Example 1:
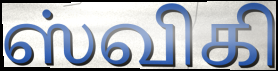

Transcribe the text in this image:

ஸ்விகி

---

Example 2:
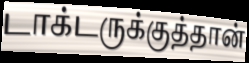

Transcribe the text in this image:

டாக்டருக்குத்தான்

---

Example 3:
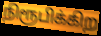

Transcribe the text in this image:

நிரூபிக்கிற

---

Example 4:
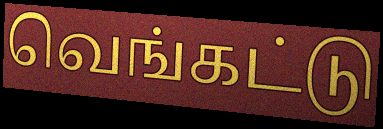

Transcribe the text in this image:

வெங்கட்டு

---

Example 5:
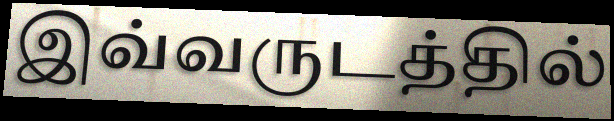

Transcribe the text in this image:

இவ்வருடத்தில்